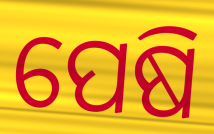
ପେଷି